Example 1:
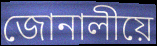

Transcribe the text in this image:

জোনালীয়ে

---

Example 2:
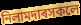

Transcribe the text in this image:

নিলামদাৰসকলে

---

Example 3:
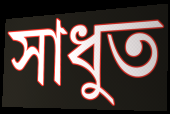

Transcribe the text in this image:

সাধুত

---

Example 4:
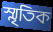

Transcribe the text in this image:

স্মৃতিক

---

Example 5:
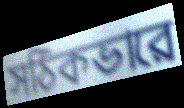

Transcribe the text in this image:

সঠিকভাৱে